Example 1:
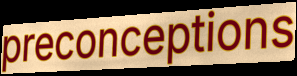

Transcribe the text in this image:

preconceptions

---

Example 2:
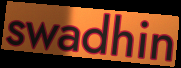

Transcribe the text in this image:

swadhin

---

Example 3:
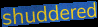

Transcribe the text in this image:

shuddered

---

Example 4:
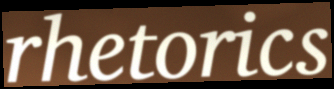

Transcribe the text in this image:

rhetorics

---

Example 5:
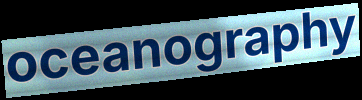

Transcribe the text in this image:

oceanography